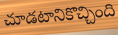
చూడటానికొచ్చింది